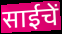
साईचें